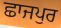
ਛਾਜਪੁਰ